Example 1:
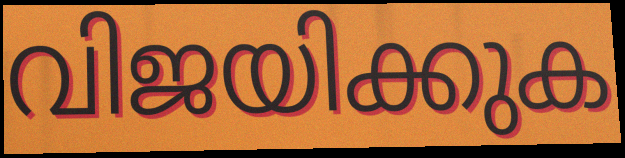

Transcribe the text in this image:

വിജയിക്കുക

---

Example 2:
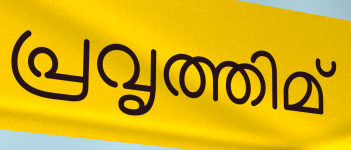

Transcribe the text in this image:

പ്രവൃത്തിമ്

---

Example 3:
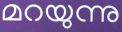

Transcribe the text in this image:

മറയുന്നു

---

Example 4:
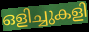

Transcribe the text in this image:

ഒളിച്ചുകളി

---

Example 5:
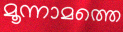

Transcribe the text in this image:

മൂന്നാമത്തെ